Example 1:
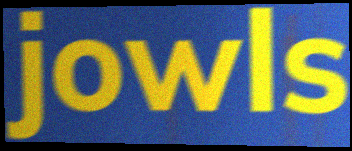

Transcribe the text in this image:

jowls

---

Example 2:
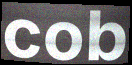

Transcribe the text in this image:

cob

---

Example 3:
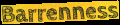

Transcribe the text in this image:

Barrenness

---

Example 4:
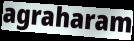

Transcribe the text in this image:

agraharam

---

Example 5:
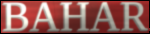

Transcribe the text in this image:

BAHAR